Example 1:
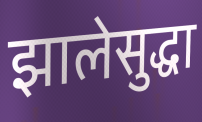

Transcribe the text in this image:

झालेसुद्धा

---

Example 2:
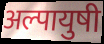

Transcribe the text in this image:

अल्पायुषी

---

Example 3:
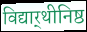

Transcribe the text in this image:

विद्यार्थीनिष्ठ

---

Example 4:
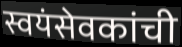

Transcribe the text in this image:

स्वयंसेवकांची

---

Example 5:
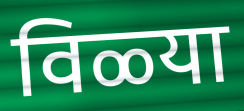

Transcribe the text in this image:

विळ्या